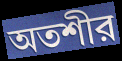
অতশীর